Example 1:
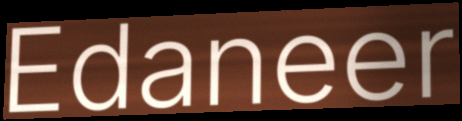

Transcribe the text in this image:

Edaneer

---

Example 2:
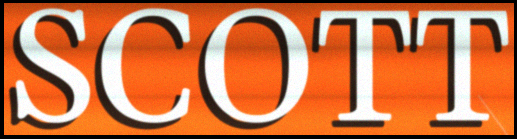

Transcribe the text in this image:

SCOTT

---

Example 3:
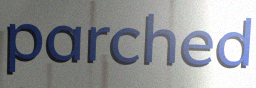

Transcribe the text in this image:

parched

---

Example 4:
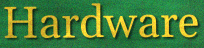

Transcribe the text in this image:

Hardware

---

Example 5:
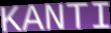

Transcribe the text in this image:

KANTI